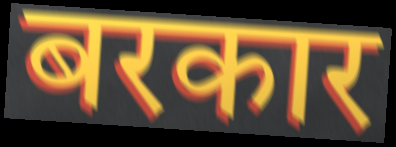
बरकार